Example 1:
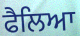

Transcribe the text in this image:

ਫੈਲਿਆ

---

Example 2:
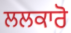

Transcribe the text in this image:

ਲਲਕਾਰੋ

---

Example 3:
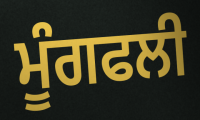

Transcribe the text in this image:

ਮੂੰਗਫਲੀ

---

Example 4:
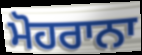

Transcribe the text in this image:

ਮੋਹਰਾਨਾ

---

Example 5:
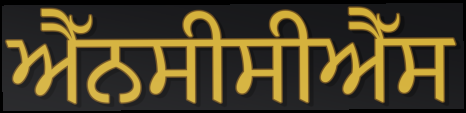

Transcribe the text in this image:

ਐੱਨਸੀਸੀਐੱਸ